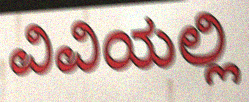
ವಿವಿಯಲ್ಲಿ